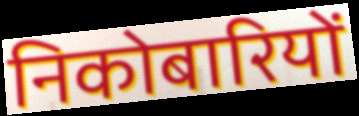
निकोबारियों